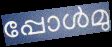
പ്പോൾമു